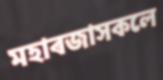
মহাৰজাসকলে